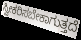
ಸ್ವೀಕರಿಸಬೇಕಾಗುತ್ತದೆ